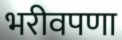
भरीवपणा